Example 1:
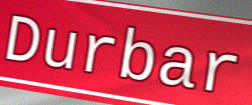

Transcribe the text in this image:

Durbar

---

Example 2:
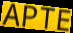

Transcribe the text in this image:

APTE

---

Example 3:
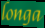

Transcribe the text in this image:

longa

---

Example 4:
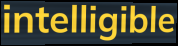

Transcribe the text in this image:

intelligible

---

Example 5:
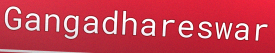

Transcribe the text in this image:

Gangadhareswar